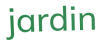
jardin